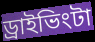
ড্রাইভিংটা